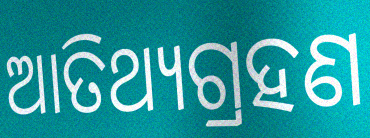
ଆତିଥ୍ୟଗ୍ରହଣ